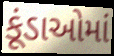
કૂંડાઓમાં